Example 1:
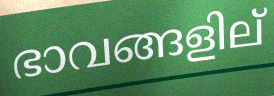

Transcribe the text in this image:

ഭാവങ്ങളില്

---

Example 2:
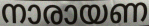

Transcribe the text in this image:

നാരായണ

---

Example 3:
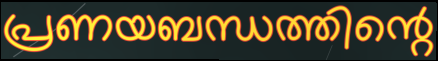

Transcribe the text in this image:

പ്രണയബന്ധത്തിന്റെ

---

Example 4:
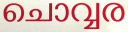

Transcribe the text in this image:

ചൊവ്വര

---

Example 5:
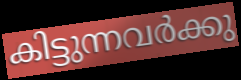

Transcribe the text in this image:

കിട്ടുന്നവർക്കു